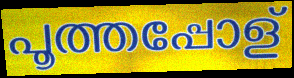
പൂത്തപ്പോള്